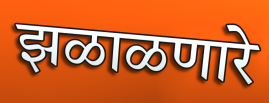
झळाळणारे